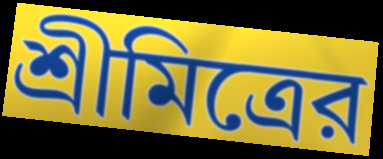
শ্রীমিত্রের